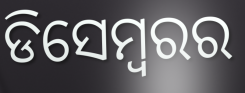
ଡିସେମ୍ୱରର